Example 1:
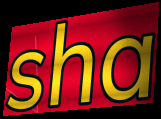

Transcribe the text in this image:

sha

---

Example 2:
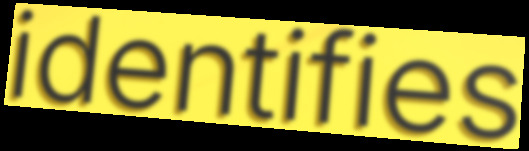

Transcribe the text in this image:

identifies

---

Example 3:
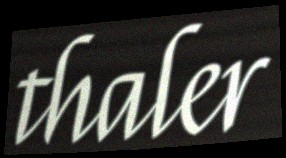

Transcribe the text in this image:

thaler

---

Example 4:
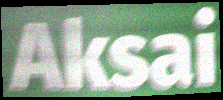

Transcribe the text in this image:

Aksai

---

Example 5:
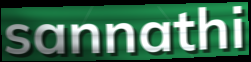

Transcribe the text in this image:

sannathi